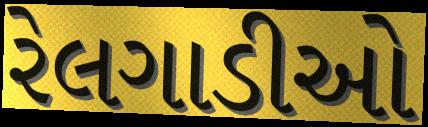
રેલગાડીઓ